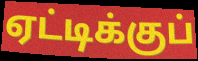
ஏட்டிக்குப்